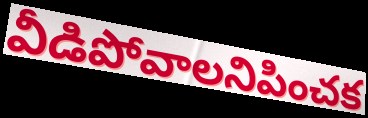
వీడిపోవాలనిపించక